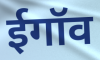
ईगॉव